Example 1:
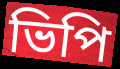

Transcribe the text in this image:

ভিপি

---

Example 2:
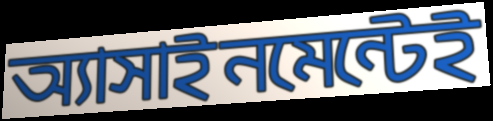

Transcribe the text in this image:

অ্যাসাইনমেন্টেই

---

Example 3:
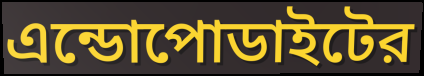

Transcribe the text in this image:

এন্ডোপোডাইটের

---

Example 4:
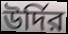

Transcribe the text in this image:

উর্দির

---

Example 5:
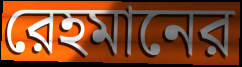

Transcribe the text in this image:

রেহমানের